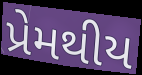
પ્રેમથીય